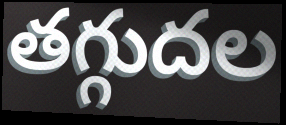
తగ్గుదల